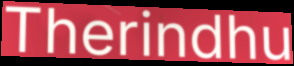
Therindhu